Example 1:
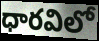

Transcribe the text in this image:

ధారవిలో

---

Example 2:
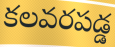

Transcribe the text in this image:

కలవరపడ్డ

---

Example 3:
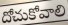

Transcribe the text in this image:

దోచుకోవాలి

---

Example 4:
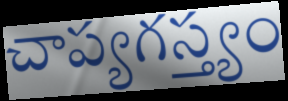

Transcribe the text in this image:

చాప్యగస్త్యం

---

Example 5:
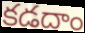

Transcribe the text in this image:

కడదాం